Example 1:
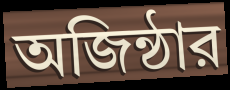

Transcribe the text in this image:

অজিন্ঠার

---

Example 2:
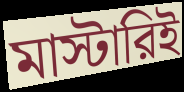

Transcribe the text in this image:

মাস্টারিই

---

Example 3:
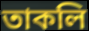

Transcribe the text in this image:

তাকলি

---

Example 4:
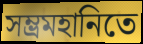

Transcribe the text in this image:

সম্ভ্রমহানিতে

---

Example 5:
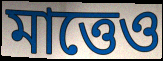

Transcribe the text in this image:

মাত্তেও